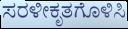
ಸರಳೀಕೃತಗೊಳಿಸಿ